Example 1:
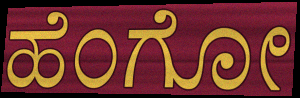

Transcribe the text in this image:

ಹೆಂಗೋ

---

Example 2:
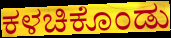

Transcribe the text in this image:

ಕಳಚಿಕೊಂಡು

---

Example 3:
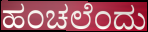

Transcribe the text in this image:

ಹಂಚಲೆಂದು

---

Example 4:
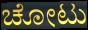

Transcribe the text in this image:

ಚೋಟು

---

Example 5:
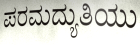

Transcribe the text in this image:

ಪರಮದ್ಯುತಿಯು